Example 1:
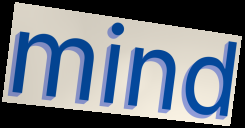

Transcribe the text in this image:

mind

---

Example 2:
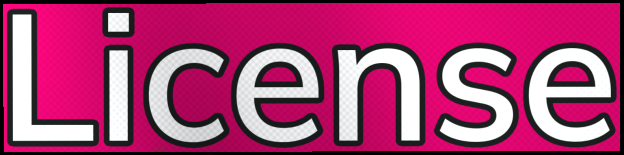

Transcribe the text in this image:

License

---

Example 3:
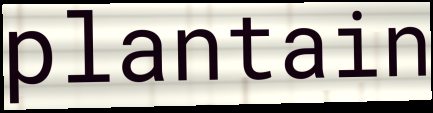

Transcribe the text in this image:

plantain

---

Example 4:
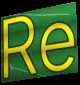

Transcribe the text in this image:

Re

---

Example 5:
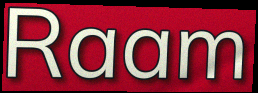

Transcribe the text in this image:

Raam